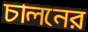
চালনের